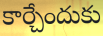
కార్చేందుకు